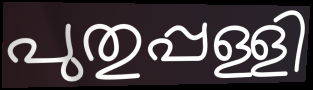
പുതുപ്പള്ളി